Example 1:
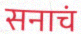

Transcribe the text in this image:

सनाचं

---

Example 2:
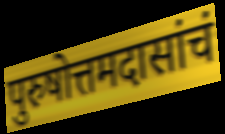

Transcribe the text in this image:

पुरुषोत्तमदासांचं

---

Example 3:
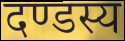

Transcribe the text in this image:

दण्डस्य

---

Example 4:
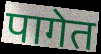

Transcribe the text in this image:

पागेत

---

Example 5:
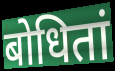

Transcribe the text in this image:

बोधितां